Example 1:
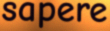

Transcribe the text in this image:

sapere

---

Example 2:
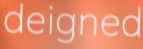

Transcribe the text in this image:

deigned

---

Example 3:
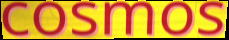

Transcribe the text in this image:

cosmos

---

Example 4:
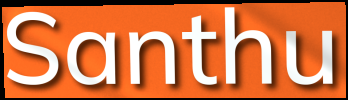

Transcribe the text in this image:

Santhu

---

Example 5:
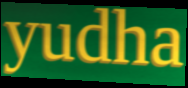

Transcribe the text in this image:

yudha